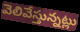
వెలివేస్తున్నట్లు